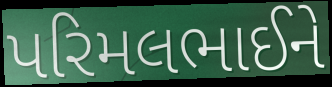
પરિમલભાઈને